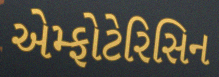
એમ્ફોટેરિસિન